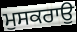
ਮੁਸਕਰਾਉ